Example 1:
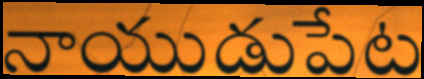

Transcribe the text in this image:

నాయుడుపేట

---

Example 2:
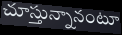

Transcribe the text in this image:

చూస్తున్నానంటూ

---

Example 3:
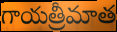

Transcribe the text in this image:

గాయత్రీమాత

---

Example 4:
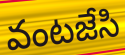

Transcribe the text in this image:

వంటజేసి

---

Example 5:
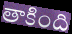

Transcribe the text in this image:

తాకింది